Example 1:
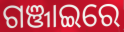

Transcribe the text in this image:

ଗଞ୍ଜାଇରେ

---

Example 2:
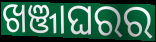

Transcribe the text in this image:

ଖଞ୍ଜାଘରର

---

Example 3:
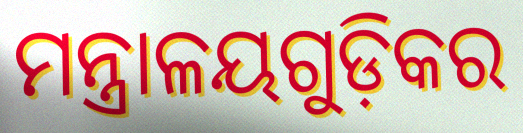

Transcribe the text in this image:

ମନ୍ତ୍ରାଳୟଗୁଡ଼ିକର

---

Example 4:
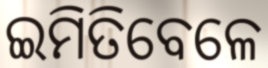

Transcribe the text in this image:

ଇମିତିବେଳେ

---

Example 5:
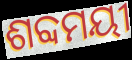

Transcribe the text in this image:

ଶବ୍ଦମୟୀ